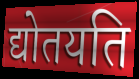
द्योतयति